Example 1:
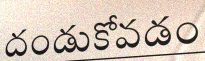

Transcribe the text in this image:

దండుకోవడం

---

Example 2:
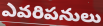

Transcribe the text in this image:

ఎవరిపనులు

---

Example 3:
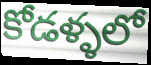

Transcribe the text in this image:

కోడళ్ళలో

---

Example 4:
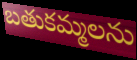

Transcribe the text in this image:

బతుకమ్మలను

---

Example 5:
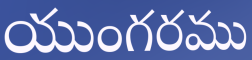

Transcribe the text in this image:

యుంగరము